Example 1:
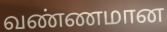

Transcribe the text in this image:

வண்ணமான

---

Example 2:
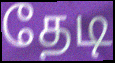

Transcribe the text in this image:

தேடி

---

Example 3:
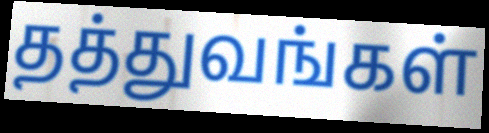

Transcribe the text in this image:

தத்துவங்கள்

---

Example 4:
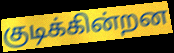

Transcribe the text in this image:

குடிக்கின்றன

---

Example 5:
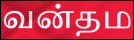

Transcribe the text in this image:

வன்தம